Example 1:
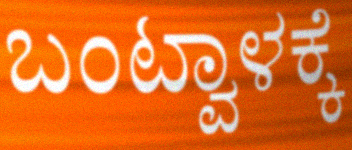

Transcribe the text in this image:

ಬಂಟ್ವಾಳಕ್ಕೆ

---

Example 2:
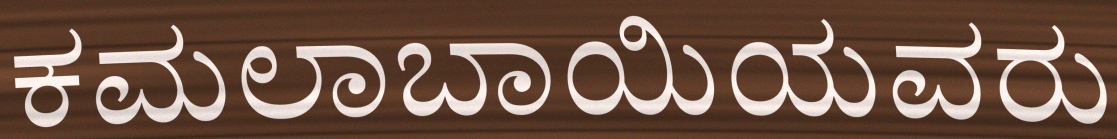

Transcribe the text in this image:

ಕಮಲಾಬಾಯಿಯವರು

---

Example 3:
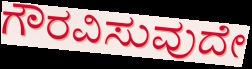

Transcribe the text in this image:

ಗೌರವಿಸುವುದೇ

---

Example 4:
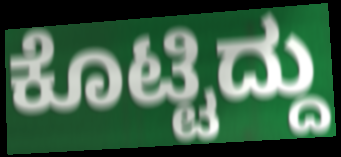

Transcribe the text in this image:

ಕೊಟ್ಟಿದ್ದು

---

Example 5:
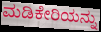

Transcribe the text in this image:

ಮಡಿಕೇರಿಯನ್ನು